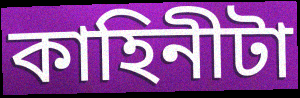
কাহিনীটা